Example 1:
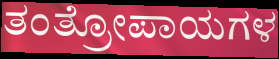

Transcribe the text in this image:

ತಂತ್ರೋಪಾಯಗಳ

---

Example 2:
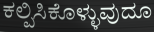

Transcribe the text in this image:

ಕಲ್ಪಿಸಿಕೊಳ್ಳುವುದೂ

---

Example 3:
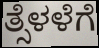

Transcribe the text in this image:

ತ್ಸೆಳಳೆಗೆ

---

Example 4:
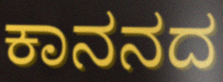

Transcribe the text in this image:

ಕಾನನದ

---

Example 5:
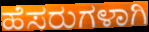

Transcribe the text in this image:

ಹೆಸರುಗಳಾಗಿ